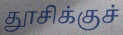
தூசிக்குச்